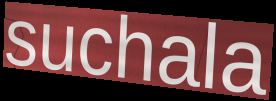
suchala